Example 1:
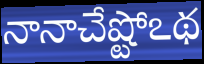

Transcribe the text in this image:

నానాచేష్టోఽథ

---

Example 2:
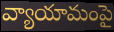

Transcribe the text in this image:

వ్యాయామంపై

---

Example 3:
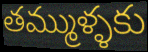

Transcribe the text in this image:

తమ్ముళ్ళకు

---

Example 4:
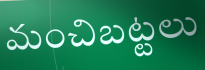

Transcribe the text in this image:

మంచిబట్టలు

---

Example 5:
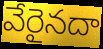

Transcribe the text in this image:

వేరైనదా